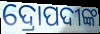
ଦ୍ରୋପଦୀଙ୍କ